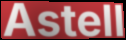
Astell